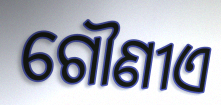
ଗୌଣୀଏ